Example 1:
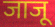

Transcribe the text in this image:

जाजू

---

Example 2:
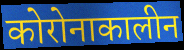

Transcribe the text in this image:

कोरोनाकालीन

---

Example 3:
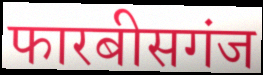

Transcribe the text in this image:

फारबीसगंज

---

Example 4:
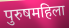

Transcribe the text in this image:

पुरुषमहिला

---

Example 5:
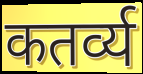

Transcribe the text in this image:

कतर्व्य